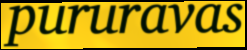
pururavas